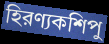
হিরণ্যকশিপু